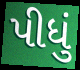
પીધું